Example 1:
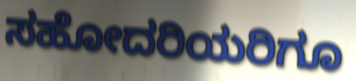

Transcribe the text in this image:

ಸಹೋದರಿಯರಿಗೂ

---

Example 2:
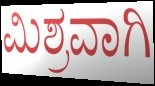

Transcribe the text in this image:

ಮಿಶ್ರವಾಗಿ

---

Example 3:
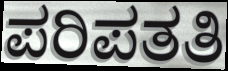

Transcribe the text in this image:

ಪರಿಪತತಿ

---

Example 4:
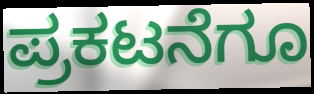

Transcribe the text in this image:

ಪ್ರಕಟನೆಗೂ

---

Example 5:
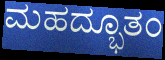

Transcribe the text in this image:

ಮಹದ್ಭೂತಂ